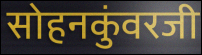
सोहनकुंवरजी